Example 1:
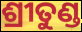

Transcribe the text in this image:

ଶ୍ରୀତୁଣ୍ଡ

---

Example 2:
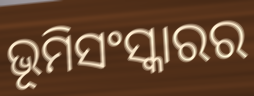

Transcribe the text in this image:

ଭୂମିସଂସ୍କାରର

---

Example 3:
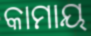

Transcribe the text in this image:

କାମାୟ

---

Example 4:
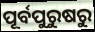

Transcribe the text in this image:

ପୂର୍ବପୁରୁଷରୁ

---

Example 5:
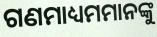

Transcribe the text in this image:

ଗଣମାଧ୍ୟମମାନଙ୍କୁ